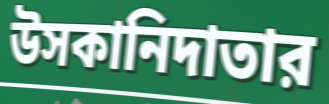
উসকানিদাতার